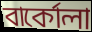
বার্কোলা